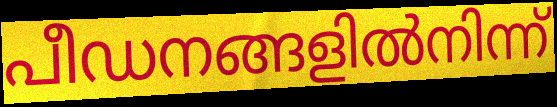
പീഡനങ്ങളിൽനിന്ന്